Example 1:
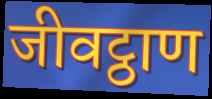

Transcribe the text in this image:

जीवट्ठाण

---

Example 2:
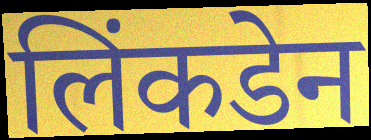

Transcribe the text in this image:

लिंकडेन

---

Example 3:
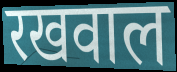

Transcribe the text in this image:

रखवाल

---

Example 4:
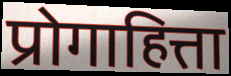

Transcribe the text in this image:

प्रोगाहित्ता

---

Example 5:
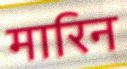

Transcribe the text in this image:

मारिन